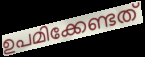
ഉപമിക്കേണ്ടത്